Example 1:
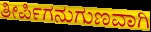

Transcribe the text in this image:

ತೀರ್ಪಿಗನುಗುಣವಾಗಿ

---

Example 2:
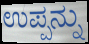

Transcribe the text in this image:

ಉಪ್ಪನ್ನು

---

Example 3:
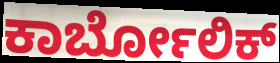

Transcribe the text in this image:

ಕಾರ್ಬೋಲಿಕ್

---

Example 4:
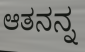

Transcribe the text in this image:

ಆತನನ್ನ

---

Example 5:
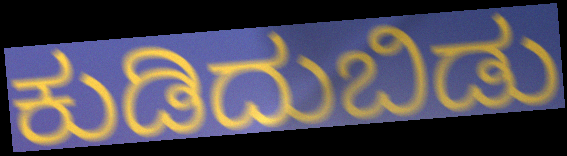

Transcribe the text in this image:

ಕುಡಿದುಬಿಡು